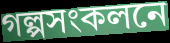
গল্পসংকলনে